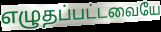
எழுதப்பட்டவையே